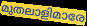
മുതലാളിമാരേ